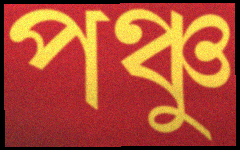
পঞ্চু